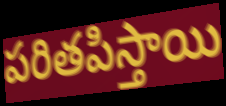
పరితపిస్తాయి